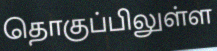
தொகுப்பிலுள்ள